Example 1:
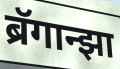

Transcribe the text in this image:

ब्रॅगान्झा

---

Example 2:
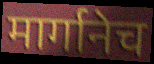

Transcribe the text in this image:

मार्गानेच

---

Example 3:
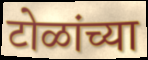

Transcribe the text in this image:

टोळांच्या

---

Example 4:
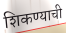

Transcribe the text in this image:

शिकण्याची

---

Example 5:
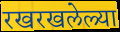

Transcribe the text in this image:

रखरखलेल्या